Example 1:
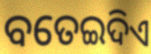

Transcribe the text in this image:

ବତେଇଦିଏ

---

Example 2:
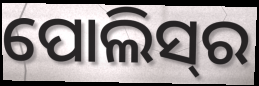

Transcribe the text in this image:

ପୋଲିସ୍‍ର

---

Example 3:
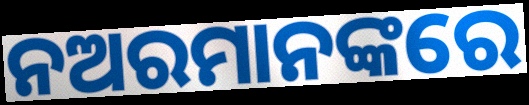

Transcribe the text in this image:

ନଅରମାନଙ୍କରେ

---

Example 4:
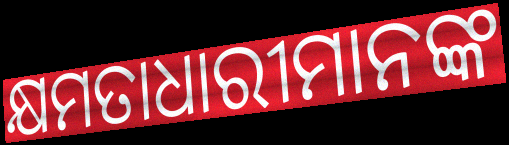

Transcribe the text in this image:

କ୍ଷମତାଧାରୀମାନଙ୍କ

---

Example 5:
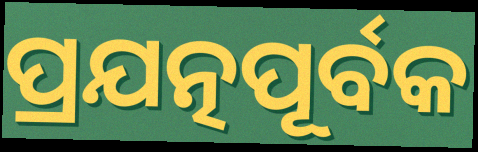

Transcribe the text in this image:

ପ୍ରଯତ୍ନପୂର୍ବକ